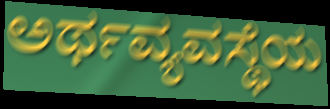
ಅರ್ಥವ್ಯವಸ್ಥೆಯ